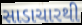
સાડાચારથી